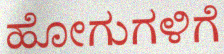
ಹೋಗುಗಳಿಗೆ